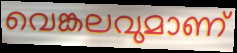
വെങ്കലവുമാണ്